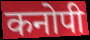
कनोपी